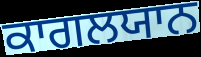
ਕਾਗਲਯਾਨ